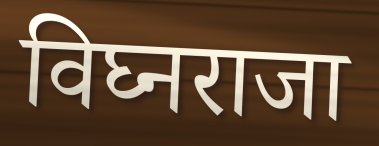
विघ्नराजा